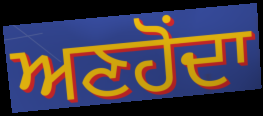
ਅਣਹੋਂਦਾ